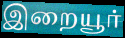
இறையூர்